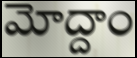
మోద్దాం